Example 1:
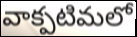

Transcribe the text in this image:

వాక్పటిమలో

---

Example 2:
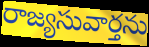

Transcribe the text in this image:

రాజ్యసువార్తను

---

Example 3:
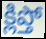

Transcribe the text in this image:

క్లిప్తో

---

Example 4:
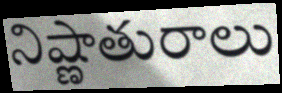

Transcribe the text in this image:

నిష్ణాతురాలు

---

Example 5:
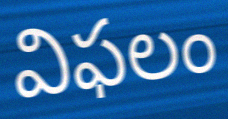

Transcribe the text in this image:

విఫలం